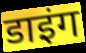
डाइंग